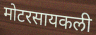
मोटरसायकली